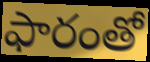
ఫారంతో